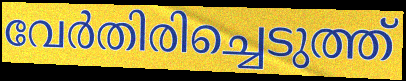
വേർതിരിച്ചെടുത്ത്